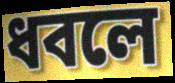
ধবলে